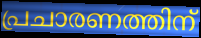
പ്രചാരണത്തിന്